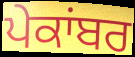
ਪੇਕਾਂਬਰ